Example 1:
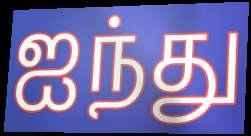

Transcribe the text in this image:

ஐந்து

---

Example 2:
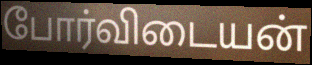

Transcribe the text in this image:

போர்விடையன்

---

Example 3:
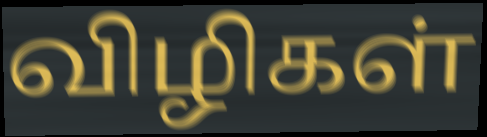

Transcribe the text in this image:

விழிகள்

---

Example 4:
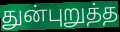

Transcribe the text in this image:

துன்புறுத்த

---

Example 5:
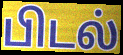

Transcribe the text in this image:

பிடல்